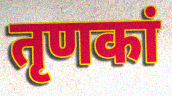
तृणकां